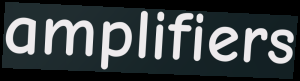
amplifiers